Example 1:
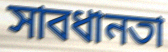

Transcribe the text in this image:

সাবধানতা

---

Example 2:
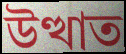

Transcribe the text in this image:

উত্থাত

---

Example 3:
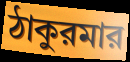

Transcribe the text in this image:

ঠাকুরমার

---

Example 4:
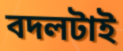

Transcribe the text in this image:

বদলটাই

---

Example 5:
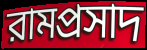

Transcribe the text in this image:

রামপ্রসাদ